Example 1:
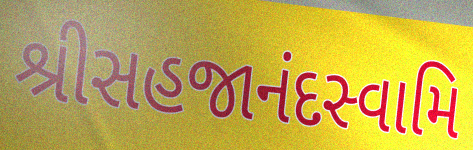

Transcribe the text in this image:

શ્રીસહજાનંદસ્વામિ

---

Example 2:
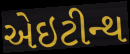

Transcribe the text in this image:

એઇટીન્થ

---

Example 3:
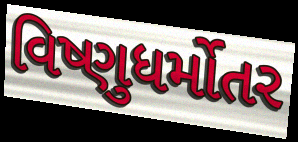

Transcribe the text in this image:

વિષ્ણુધર્મોતર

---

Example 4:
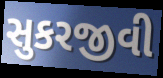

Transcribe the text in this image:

સુકરજીવી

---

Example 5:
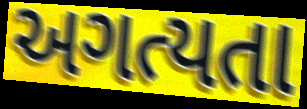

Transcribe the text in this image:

અગત્યતા